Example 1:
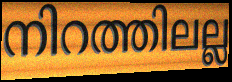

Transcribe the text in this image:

നിറത്തിലല്ല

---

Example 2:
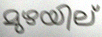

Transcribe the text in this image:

മുഴയില്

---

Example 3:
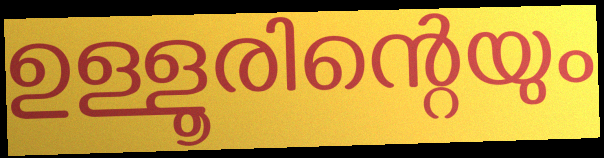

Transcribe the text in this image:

ഉള്ളൂരിന്റെയും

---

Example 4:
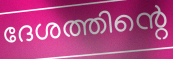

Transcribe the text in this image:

ദേശത്തിന്റെ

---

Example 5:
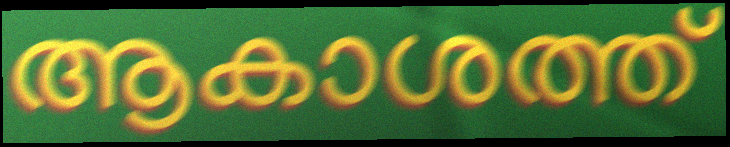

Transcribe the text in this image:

ആകാശത്ത്